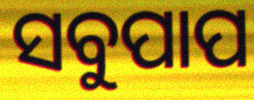
ସବୁପାପ